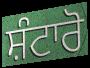
ਸ਼ੰਟਾਰੋ